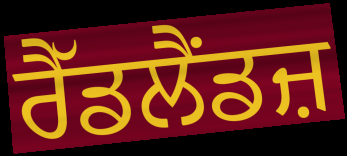
ਰੈੱਡਲੈਂਡਜ਼